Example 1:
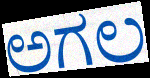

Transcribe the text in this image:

ಅಗಲ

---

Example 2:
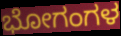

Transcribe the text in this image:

ಭೋಗಂಗಳ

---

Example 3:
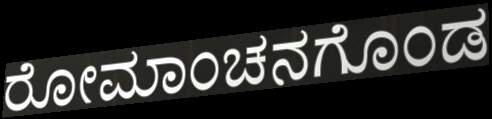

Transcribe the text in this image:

ರೋಮಾಂಚನಗೊಂಡ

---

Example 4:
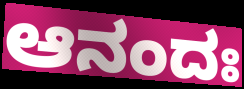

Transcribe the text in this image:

ಆನಂದಃ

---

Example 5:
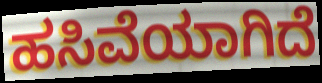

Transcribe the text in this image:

ಹಸಿವೆಯಾಗಿದೆ